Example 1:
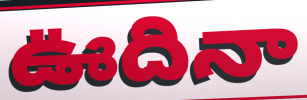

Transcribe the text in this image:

ఊదినా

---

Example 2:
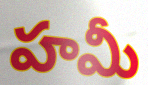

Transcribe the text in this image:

హమీ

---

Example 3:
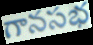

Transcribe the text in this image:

గానసభ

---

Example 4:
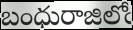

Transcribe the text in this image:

బంధురాజిలోఁ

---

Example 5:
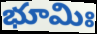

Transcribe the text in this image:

భూమిః